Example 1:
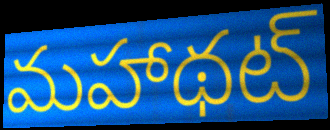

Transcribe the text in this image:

మహాథట్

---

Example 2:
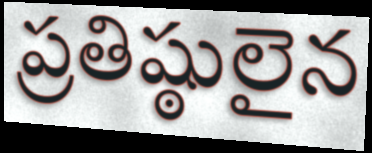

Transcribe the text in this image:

ప్రతిష్ఠులైన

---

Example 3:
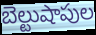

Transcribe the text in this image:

బెల్టుషాపుల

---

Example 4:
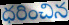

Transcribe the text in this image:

ధరించిన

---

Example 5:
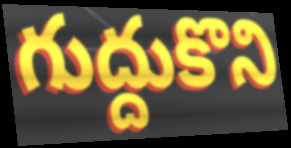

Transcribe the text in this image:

గుద్దుకొని